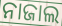
ନାଜାଲ